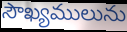
సౌఖ్యములును